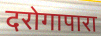
दरोगापारा